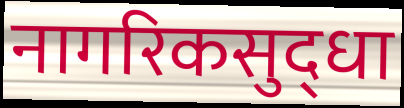
नागरिकसुद्धा